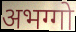
अभग्गो